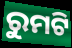
ରୁମଟି